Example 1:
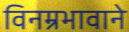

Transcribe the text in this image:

विनम्रभावाने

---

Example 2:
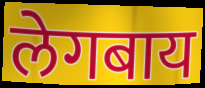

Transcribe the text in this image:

लेगबाय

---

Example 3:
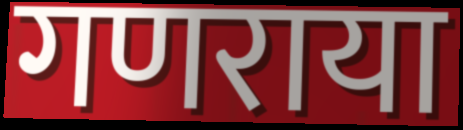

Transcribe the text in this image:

गणराया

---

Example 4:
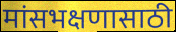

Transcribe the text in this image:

मांसभक्षणासाठी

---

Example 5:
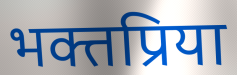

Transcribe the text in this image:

भक्तप्रिया